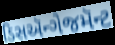
ડિસઍન્ગેજમૅન્ટ